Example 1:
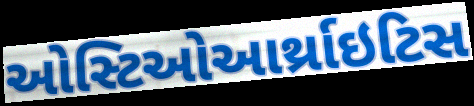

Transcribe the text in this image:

ઓસ્ટિઓઆર્થ્રાઇટિસ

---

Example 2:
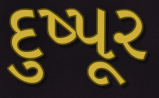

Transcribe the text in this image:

દુષ્પૂર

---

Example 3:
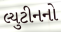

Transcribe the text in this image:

લ્યુટીનનો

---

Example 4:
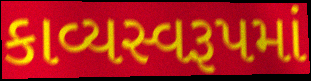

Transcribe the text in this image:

કાવ્યસ્વરૂપમાં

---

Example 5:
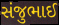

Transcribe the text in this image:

સંજુભાઈ